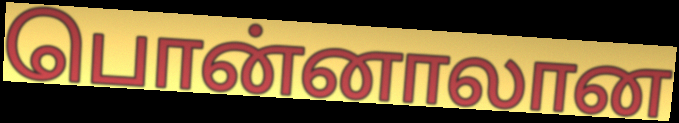
பொன்னாலான